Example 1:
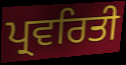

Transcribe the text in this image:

ਪ੍ਰਵਰਿਤੀ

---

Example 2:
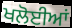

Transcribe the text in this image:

ਖਲੋਈਆਂ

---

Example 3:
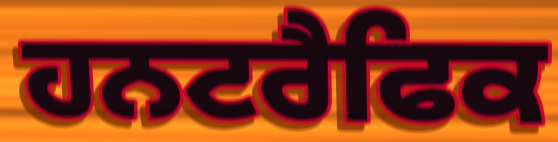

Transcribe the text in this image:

ਹਨਟਰੈਫਿਕ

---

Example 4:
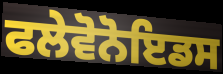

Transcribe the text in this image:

ਫਲੇਵੋਨੋਇਡਸ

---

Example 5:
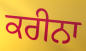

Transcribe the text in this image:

ਕਰੀਨਾ